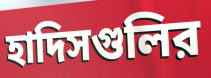
হাদিসগুলির